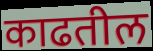
काढतील